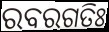
ରବରଗତିଃ